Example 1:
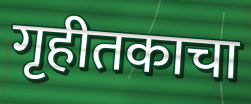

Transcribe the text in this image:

गृहीतकाचा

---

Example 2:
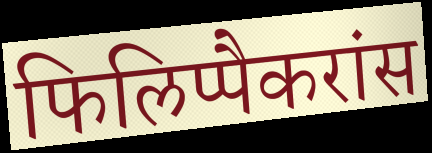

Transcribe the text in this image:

फिलिप्पैकरांस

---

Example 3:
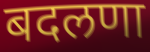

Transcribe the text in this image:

बदलणा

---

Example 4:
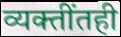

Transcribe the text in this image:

व्यक्तींतही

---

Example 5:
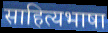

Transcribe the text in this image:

साहित्यभाषा